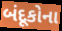
બંદૂકોના